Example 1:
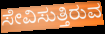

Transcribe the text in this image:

ಸೇವಿಸುತ್ತಿರುವ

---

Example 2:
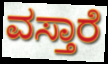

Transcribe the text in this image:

ವಸ್ತಾರೆ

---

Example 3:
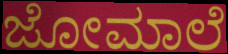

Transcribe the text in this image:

ಜೋಮಾಲೆ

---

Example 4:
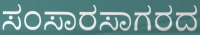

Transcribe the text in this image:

ಸಂಸಾರಸಾಗರದ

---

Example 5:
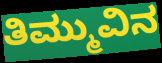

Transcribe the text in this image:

ತಿಮ್ಮುವಿನ